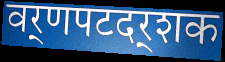
वर्णपटदर्शक